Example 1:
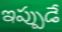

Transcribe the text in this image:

ఇప్పుడే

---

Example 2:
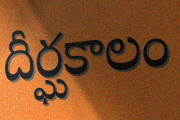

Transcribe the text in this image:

దీర్ఘకాలం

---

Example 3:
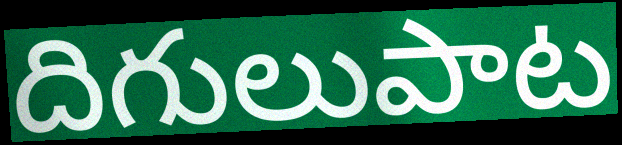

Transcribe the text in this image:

దిగులుపాట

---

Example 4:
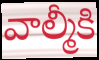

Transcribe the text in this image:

వాల్మీకి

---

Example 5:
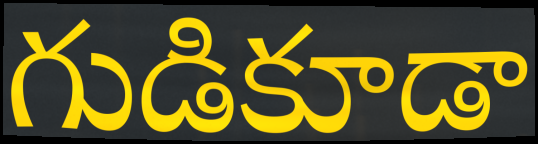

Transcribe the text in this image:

గుడికూడా